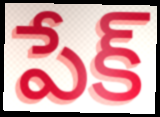
పేక్